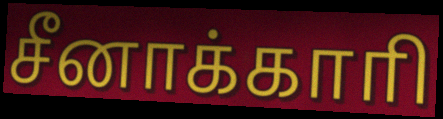
சீனாக்காரி